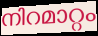
നിറമാറ്റം